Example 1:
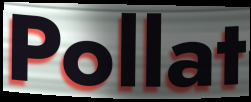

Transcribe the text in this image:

Pollat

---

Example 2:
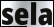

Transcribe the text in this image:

sela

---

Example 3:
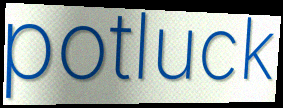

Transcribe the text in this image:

potluck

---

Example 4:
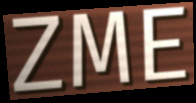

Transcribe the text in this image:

ZME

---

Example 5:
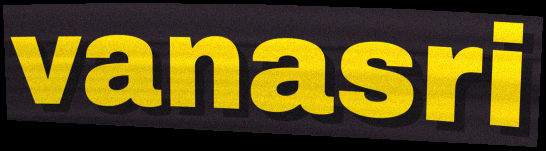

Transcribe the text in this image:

vanasri